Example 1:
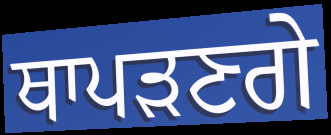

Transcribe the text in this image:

ਥਾਪੜਣਗੇ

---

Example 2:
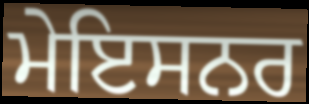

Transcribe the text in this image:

ਮੇਇਸਨਰ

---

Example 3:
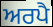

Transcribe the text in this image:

ਅਰਪੈ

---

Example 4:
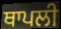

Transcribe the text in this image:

ਥਾਪਲੀ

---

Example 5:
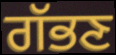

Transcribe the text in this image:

ਗੱਭਣ